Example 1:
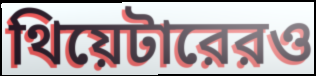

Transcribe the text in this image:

থিয়েটারেরও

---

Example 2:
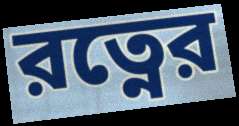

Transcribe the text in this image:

রত্নের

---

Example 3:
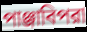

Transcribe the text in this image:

পাঞ্জাবিপরা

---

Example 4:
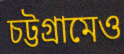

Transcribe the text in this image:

চট্টগ্রামেও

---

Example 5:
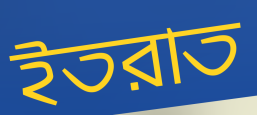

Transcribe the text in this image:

ইতরাত